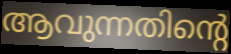
ആവുന്നതിന്റെ